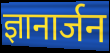
ज्ञानार्जन